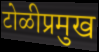
टोळीप्रमुख